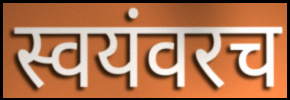
स्वयंवरच